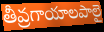
తీవ్రగాయాలపాలై